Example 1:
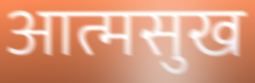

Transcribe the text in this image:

आत्मसुख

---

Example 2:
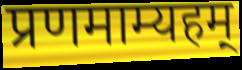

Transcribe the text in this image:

प्रणमाम्यहम्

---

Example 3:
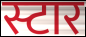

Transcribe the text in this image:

स्‍टार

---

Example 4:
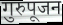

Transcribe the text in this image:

गुरुपूजन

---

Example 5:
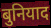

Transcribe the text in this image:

बुनियाद